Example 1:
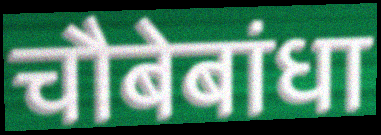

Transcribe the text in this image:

चौबेबांधा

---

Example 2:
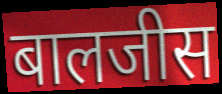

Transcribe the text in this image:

बालजीस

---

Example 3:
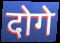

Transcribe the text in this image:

दोगे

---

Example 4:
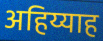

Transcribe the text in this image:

अहिय्याह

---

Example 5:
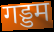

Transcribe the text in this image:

गड्डम